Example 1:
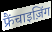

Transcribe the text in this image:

फ्रैंचाइज़िंग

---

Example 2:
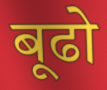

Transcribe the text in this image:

बूढो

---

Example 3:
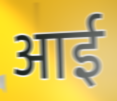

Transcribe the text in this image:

आई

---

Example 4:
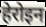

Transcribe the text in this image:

हेरोइन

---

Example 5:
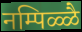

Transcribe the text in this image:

नम्पिळ्ळै